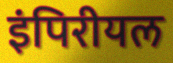
इंपिरीयल